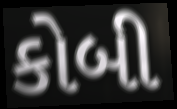
કોબી